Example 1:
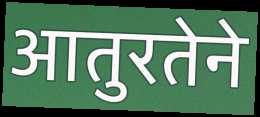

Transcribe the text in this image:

आतुरतेने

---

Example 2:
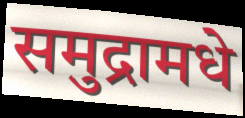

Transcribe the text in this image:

समुद्रामधे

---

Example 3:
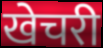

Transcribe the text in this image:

खेचरी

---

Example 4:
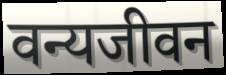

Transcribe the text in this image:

वन्यजीवन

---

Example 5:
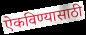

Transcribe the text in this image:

ऐकविण्यासाठी